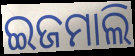
ଇଜମାଲି